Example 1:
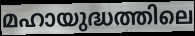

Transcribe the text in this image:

മഹായുദ്ധത്തിലെ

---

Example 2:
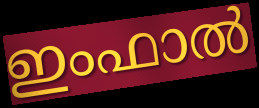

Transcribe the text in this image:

ഇംഫാൽ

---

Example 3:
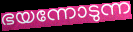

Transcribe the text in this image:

ഭയന്നോടുന്ന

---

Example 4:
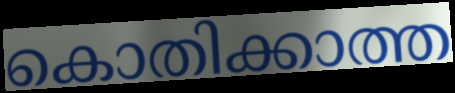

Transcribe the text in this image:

കൊതിക്കാത്ത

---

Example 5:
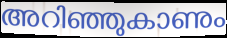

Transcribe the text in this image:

അറിഞ്ഞുകാണും